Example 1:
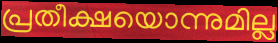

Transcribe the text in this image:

പ്രതീക്ഷയൊന്നുമില്ല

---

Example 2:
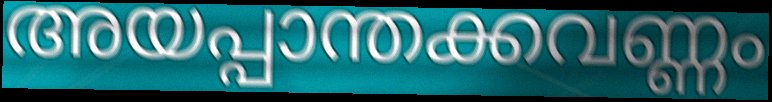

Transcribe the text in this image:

അയപ്പാന്തക്കവണ്ണം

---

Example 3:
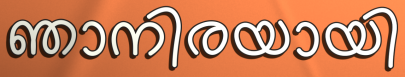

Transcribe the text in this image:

ഞാനിരയായി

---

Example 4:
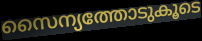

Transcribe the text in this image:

സൈന്യത്തോടുകൂടെ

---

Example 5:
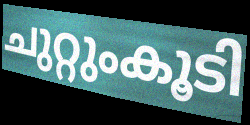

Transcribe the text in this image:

ചുറ്റുംകൂടി